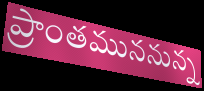
ప్రాంతముననున్న